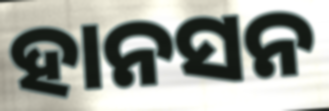
ହାନସନ